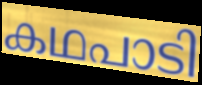
കഥപാടി